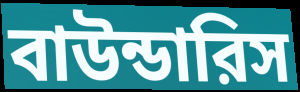
বাউন্ডারিস